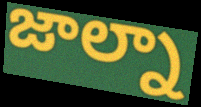
జాల్నా